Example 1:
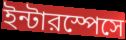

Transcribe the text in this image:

ইন্টারস্পেসে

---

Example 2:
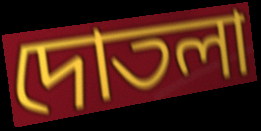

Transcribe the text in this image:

দোতলা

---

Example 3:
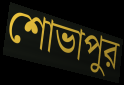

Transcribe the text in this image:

শোভাপুর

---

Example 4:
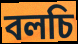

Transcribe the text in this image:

বলচি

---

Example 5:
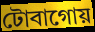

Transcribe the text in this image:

টোবাগোয়